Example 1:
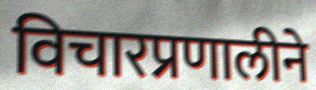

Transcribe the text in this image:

विचारप्रणालीने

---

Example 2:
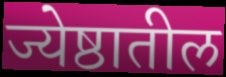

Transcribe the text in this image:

ज्येष्ठातील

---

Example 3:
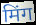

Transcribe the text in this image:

मिंग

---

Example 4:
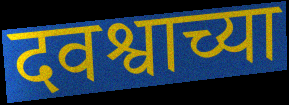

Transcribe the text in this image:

दवश्वाच्या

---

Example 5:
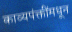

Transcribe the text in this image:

काव्यपंक्तींमधून